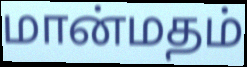
மான்மதம்